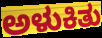
ಅಳುಕಿತು